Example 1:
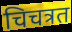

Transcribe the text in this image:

चिचत्रत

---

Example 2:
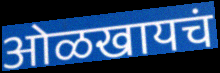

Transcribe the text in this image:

ओळखायचं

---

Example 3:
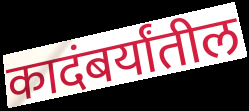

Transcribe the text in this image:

कादंबर्यांतील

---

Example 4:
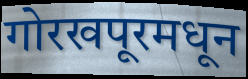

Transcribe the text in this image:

गोरखपूरमधून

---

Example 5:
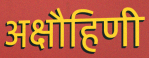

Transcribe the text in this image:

अक्षौहिणी